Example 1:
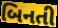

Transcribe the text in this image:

બિનતી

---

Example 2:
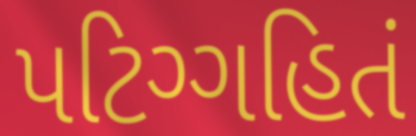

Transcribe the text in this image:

પટિગ્ગહિતં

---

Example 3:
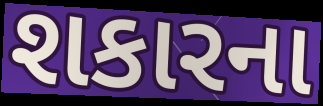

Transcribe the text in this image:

શકારના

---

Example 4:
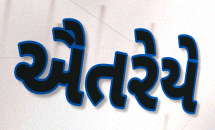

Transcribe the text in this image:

ઐતરેયે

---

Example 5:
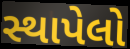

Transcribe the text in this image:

સ્થાપેલો